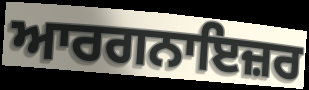
ਆਰਗਨਾਇਜ਼ਰ